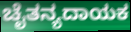
ಚೈತನ್ಯದಾಯಕ